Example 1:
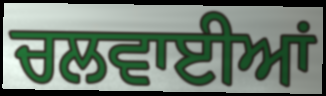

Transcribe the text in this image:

ਚਲਵਾਈਆਂ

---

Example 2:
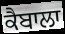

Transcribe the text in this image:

ਕੈਬਾਲਾ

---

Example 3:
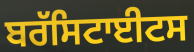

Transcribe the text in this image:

ਬਰੱਸਿਟਾਈਟਸ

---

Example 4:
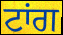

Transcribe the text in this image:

ਟਾਂਗ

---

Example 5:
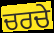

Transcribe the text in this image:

ਚਰਚੇ